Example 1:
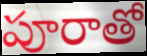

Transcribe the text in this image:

పూరాతో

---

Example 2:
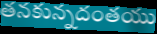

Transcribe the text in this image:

తనకున్నదంతయు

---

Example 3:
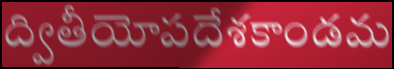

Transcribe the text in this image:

ద్వితీయోపదేశకాండమ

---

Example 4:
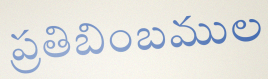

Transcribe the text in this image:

ప్రతిబింబముల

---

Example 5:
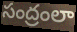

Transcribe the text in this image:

సంద్రంలా